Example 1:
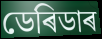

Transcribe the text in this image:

ডেৰিডাৰ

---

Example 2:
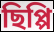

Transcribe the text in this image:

ছিপ্পি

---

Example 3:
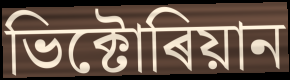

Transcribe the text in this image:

ভিক্টোৰিয়ান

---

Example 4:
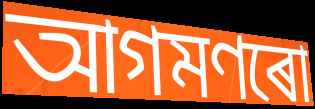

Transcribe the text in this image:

আগমণৰো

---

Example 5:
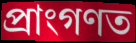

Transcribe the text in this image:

প্ৰাংগণত